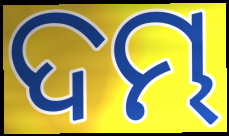
ଦମ୍ଭ